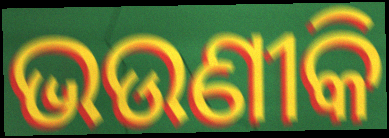
ଭଉଣୀକି